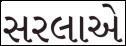
સરલાએ